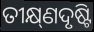
ତୀକ୍ଷ୍‌ଣଦୃଷ୍ଟି